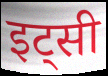
इट्सी